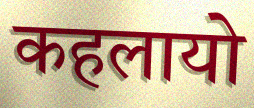
कहलायो